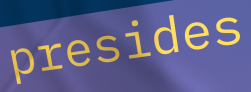
presides